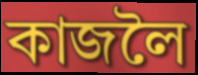
কাজলৈ